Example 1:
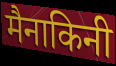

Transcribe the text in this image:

मैनाकिनी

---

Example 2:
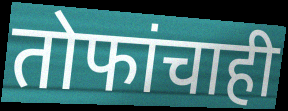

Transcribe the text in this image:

तोफांचाही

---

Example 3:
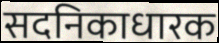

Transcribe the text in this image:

सदनिकाधारक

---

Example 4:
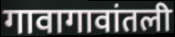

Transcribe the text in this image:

गावागावांतली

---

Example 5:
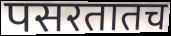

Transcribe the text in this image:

पसरतातच